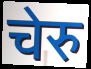
चेरु